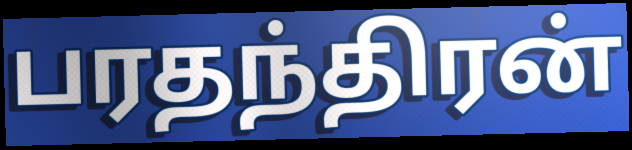
பரதந்திரன்